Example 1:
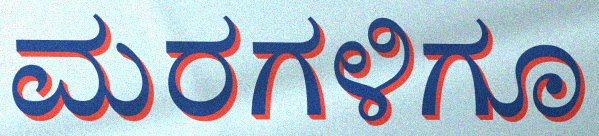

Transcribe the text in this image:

ಮರಗಳಿಗೂ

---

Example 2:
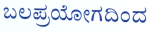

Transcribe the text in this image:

ಬಲಪ್ರಯೋಗದಿಂದ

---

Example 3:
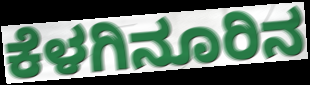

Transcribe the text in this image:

ಕೆಳಗಿನೂರಿನ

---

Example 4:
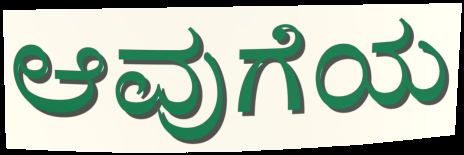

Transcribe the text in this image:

ಆವುಗೆಯ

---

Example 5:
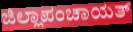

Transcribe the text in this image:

ಜಿಲ್ಲಾಪಂಚಾಯತ್